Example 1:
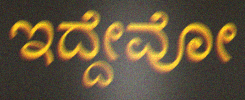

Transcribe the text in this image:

ಇದ್ದೇವೋ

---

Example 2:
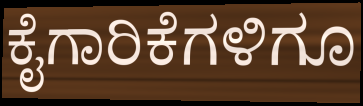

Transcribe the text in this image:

ಕೈಗಾರಿಕೆಗಳಿಗೂ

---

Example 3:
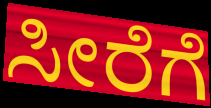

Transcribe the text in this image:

ಸೀರೆಗೆ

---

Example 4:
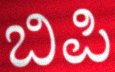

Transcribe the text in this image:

ಬಿಪಿ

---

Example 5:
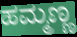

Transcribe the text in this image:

ಹಮ್ಮಣ್ಣ